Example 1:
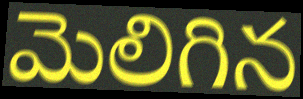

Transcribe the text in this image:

మెలిగిన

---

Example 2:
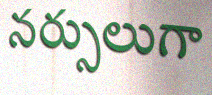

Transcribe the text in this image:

నర్సులుగా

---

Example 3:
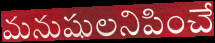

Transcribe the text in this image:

మనుషులనిపించే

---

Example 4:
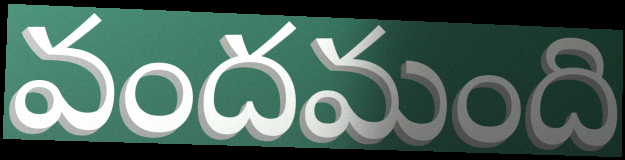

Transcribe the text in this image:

వందమంది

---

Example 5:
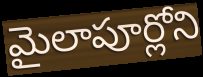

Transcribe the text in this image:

మైలాపూర్లోని